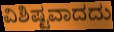
ವಿಶಿಷ್ಟವಾದದು